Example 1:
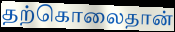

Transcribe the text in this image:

தற்கொலைதான்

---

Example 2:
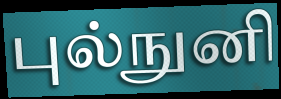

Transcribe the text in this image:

புல்நுனி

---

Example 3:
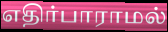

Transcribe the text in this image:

எதிர்பாராமல்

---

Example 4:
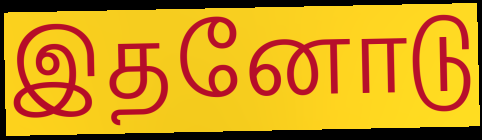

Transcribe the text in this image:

இதனோடு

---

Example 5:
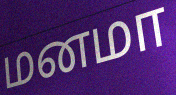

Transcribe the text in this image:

மனமா